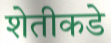
शेतीकडे